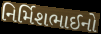
નિર્મિશભાઈનો